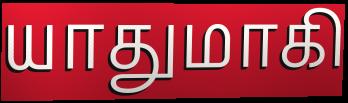
யாதுமாகி